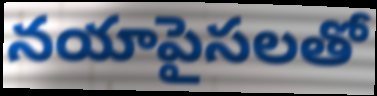
నయాపైసలతో